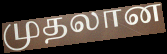
முதலான